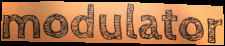
modulator